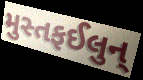
મુસ્તફઈલુન્